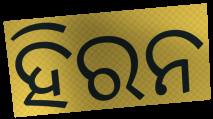
ହିରନ